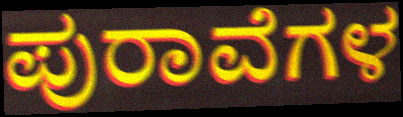
ಪುರಾವೆಗಳ